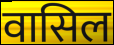
वासिल